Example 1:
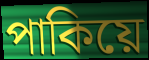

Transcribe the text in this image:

পাকিয়ে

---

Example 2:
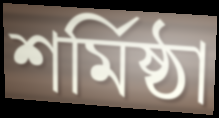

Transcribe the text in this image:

শর্মিষ্ঠা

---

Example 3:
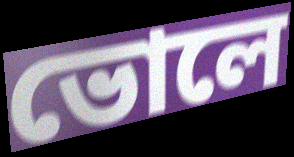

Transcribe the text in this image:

ভোলে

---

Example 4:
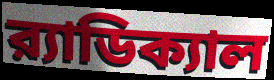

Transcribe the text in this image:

র‍্যাডিক্যাল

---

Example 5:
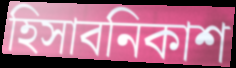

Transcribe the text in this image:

হিসাবনিকাশ